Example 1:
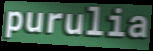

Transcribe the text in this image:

purulia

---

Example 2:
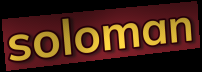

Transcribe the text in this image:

soloman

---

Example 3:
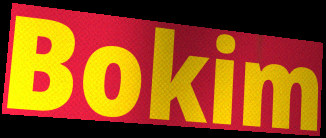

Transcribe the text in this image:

Bokim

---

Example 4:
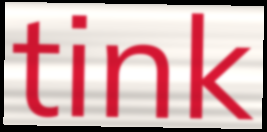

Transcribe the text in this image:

tink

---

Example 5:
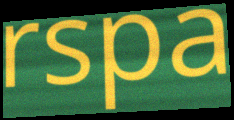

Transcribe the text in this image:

rspa